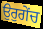
ਉਰੁਗੇਂਚ